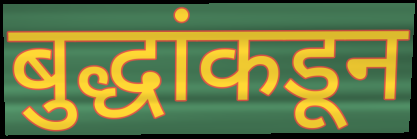
बुद्धांकडून